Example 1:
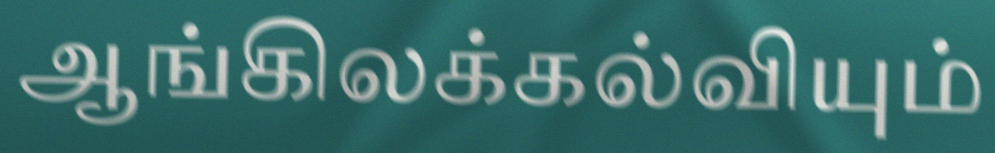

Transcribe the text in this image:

ஆங்கிலக்கல்வியும்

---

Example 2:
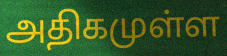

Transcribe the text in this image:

அதிகமுள்ள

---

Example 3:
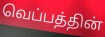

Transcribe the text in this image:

வெப்பத்தின்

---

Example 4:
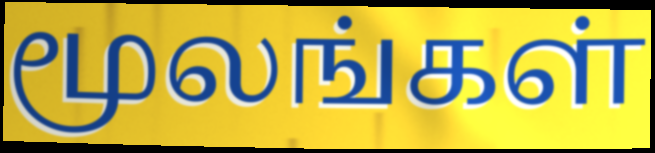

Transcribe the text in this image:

மூலங்கள்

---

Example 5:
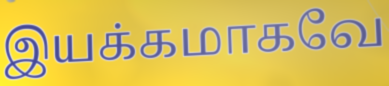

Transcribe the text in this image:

இயக்கமாகவே